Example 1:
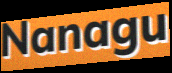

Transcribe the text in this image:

Nanagu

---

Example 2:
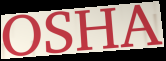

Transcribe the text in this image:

OSHA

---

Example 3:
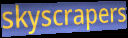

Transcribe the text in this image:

skyscrapers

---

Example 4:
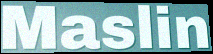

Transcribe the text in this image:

Maslin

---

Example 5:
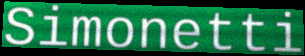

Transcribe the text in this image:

Simonetti